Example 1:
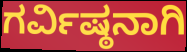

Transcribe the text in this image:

ಗರ್ವಿಷ್ಠನಾಗಿ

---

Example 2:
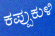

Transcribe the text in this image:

ಕಪ್ಪುಕುಳಿ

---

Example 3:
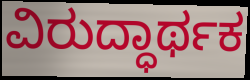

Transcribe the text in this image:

ವಿರುದ್ಧಾರ್ಥಕ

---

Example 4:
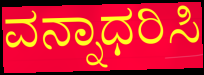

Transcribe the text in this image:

ವನ್ನಾಧರಿಸಿ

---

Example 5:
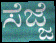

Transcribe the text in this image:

ಸೆಜ್ಜೆ